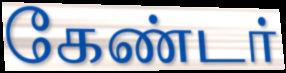
கேண்டர்